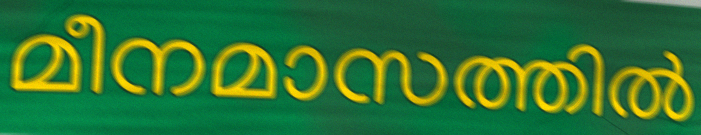
മീനമാസത്തിൽ